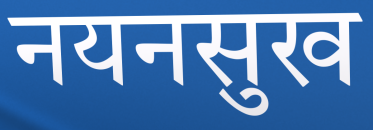
नयनसुख